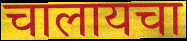
चालायचा